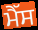
ਮੈੱਸ